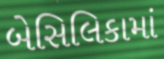
બેસિલિકામાં